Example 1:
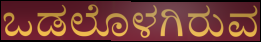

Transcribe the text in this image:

ಒಡಲೊಳಗಿರುವ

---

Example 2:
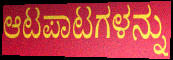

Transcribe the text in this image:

ಆಟಪಾಟಗಳನ್ನು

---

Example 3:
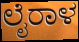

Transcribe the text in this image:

ಲೈರಾಳ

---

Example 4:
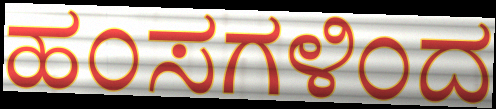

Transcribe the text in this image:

ಹಂಸಗಳಿಂದ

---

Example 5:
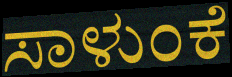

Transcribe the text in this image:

ಸಾಳುಂಕೆ